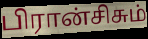
பிரான்சிசும்